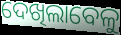
ଦେଖିଲାବେଳୁ